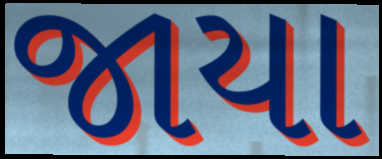
જાયા